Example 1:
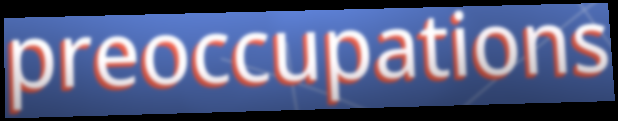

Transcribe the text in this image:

preoccupations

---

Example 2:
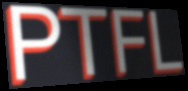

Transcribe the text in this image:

PTFL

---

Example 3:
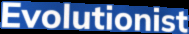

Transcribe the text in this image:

Evolutionist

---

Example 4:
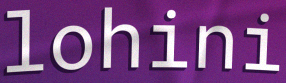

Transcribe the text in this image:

lohini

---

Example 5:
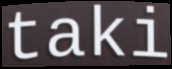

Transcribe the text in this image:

taki